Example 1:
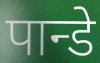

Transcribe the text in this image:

पान्डे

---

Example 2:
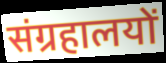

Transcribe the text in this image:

संग्रहालयों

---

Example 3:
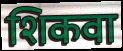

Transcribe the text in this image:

शिकवा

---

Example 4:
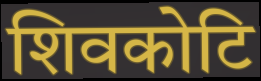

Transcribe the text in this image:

शिवकोटि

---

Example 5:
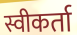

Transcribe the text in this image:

स्वीकर्ता